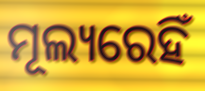
ମୂଲ୍ୟରେହିଁ